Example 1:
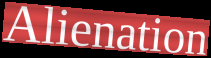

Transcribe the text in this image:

Alienation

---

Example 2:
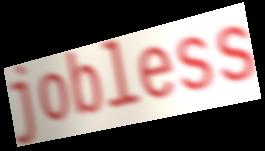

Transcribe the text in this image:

jobless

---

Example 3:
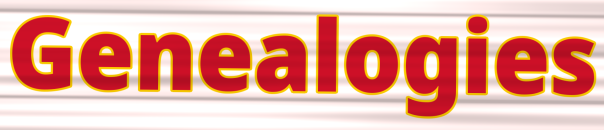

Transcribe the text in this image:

Genealogies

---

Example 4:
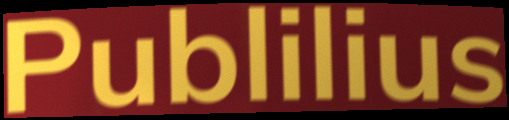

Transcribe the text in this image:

Publilius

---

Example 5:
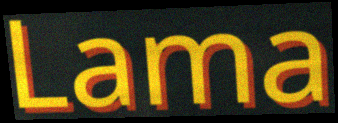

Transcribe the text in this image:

Lama